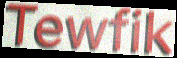
Tewfik